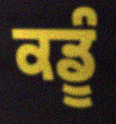
ਕਡੂੰ